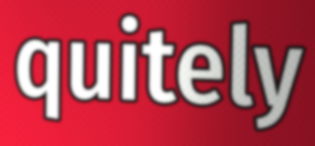
quitely